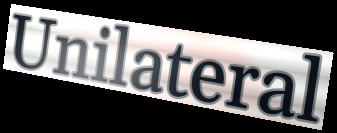
Unilateral